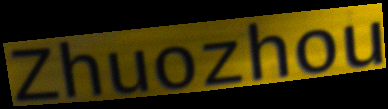
Zhuozhou